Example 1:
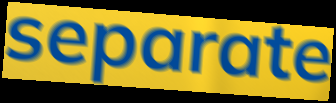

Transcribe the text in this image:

separate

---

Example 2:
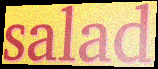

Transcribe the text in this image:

salad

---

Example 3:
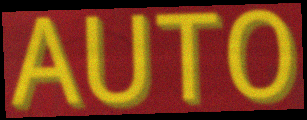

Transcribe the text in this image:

AUTO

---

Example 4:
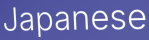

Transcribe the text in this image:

Japanese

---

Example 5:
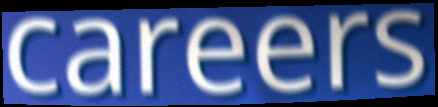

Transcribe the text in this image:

careers